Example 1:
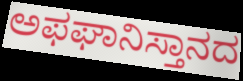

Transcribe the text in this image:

ಅಫಘಾನಿಸ್ತಾನದ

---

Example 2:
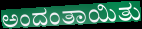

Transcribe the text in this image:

ಅಂದಂತಾಯಿತು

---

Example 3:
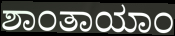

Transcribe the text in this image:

ಶಾಂತಾಯಾಂ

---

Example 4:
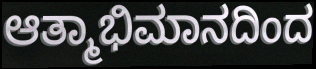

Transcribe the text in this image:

ಆತ್ಮಾಭಿಮಾನದಿಂದ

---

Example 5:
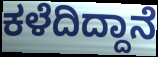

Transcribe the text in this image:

ಕಳೆದಿದ್ದಾನೆ